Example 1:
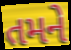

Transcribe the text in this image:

તમને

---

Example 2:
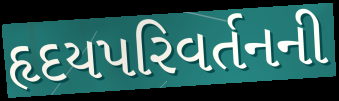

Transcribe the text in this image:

હૃદયપરિવર્તનની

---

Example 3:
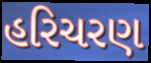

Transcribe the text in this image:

હરિચરણ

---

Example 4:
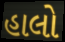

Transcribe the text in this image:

હાલો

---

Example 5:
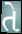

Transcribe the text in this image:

તે